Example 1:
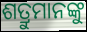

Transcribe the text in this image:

ଶତ୍ରୁମାନଙ୍କୁ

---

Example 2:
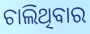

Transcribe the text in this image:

ଚାଲିଥିବାର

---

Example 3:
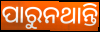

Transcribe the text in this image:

ପାରୁନଥାନ୍ତି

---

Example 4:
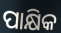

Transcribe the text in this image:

ପାକ୍ଷିକ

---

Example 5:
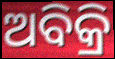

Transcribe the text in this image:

ଅବିକ୍ରି